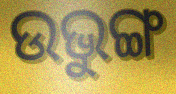
ଉଭୁଙ୍ଗ